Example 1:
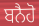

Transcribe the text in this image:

ਬਨੈਹੋ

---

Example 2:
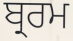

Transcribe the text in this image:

ਬ੍ਰਰਮ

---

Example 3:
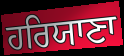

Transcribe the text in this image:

ਹਰਿਯਾਣਾ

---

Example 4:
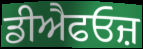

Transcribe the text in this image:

ਡੀਐਫਓਜ਼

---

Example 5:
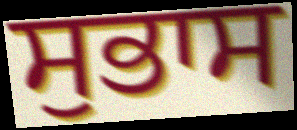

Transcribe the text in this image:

ਸੁਭਾਸ